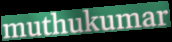
muthukumar